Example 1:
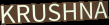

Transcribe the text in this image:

KRUSHNA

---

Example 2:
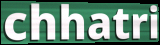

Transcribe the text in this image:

chhatri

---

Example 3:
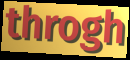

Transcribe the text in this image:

throgh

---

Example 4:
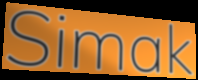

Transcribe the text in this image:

Simak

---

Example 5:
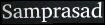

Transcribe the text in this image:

Samprasad